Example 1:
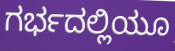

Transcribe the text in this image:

ಗರ್ಭದಲ್ಲಿಯೂ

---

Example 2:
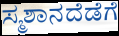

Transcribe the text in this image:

ಸ್ಮಶಾನದೆಡೆಗೆ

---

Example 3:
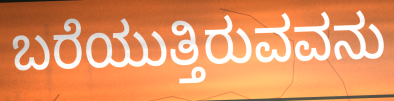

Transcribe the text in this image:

ಬರೆಯುತ್ತಿರುವವನು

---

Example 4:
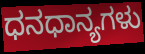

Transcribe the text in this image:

ಧನಧಾನ್ಯಗಳು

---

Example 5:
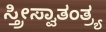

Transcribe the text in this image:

ಸ್ತ್ರೀಸ್ವಾತಂತ್ರ್ಯ